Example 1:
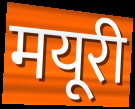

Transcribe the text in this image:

मयूरी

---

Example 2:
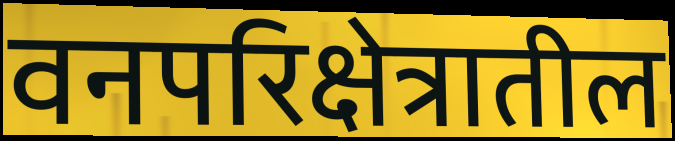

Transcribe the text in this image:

वनपरिक्षेत्रातील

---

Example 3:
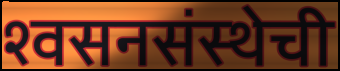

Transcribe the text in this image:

श्वसनसंस्थेची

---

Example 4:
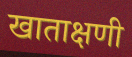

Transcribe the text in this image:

खाताक्षणी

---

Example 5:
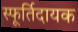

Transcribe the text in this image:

स्फूर्तिदायक